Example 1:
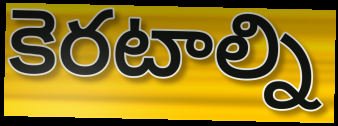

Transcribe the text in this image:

కెరటాల్ని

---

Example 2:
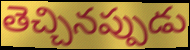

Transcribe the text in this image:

తెచ్చినప్పుడు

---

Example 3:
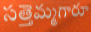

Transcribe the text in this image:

సత్తెమ్మగారూ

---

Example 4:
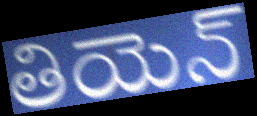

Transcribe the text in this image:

తియెన్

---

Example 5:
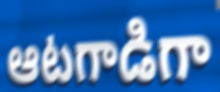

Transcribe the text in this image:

ఆటగాడిగా